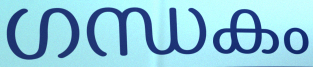
ഗന്ധകം